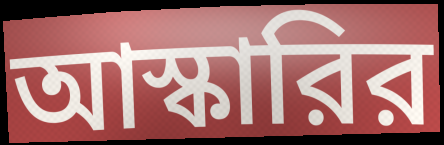
আস্কারির